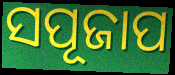
ସପୂଜାପ